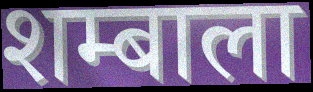
शम्बाला